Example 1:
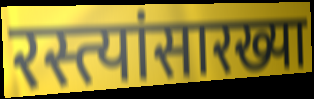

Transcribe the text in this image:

रस्त्यांसारख्या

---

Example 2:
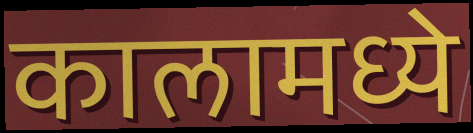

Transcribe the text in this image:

कालामध्ये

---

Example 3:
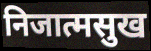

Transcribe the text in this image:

निजात्मसुख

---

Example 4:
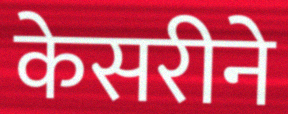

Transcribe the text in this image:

केसरीने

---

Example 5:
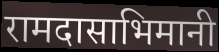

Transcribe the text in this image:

रामदासाभिमानी